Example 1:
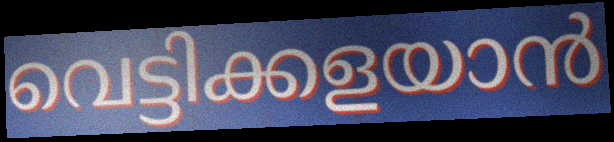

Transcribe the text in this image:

വെട്ടിക്കളയാൻ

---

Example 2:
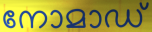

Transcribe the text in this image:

നോമാഡ്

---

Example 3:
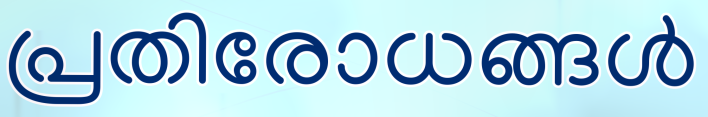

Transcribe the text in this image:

പ്രതിരോധങ്ങൾ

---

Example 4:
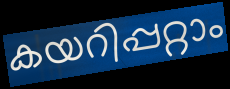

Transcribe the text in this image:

കയറിപ്പറ്റാം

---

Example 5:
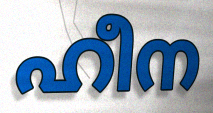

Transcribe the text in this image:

ഹീന